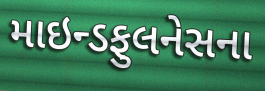
માઇન્ડફુલનેસના